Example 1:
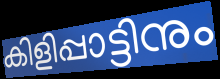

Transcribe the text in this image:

കിളിപ്പാട്ടിനും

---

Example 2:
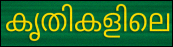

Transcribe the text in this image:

കൃതികളിലെ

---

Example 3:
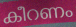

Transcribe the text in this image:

കീറണം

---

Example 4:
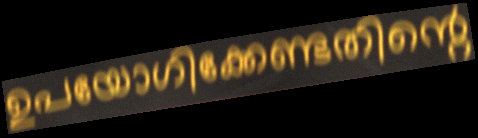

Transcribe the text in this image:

ഉപയോഗിക്കേണ്ടതിന്റെ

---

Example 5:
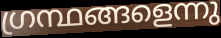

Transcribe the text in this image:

ഗ്രന്ഥങ്ങളെന്നു